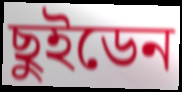
ছুইডেন